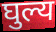
घुल्य